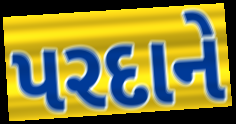
પરદાને